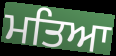
ਮਤਿਆ